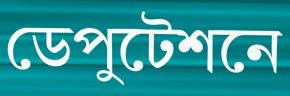
ডেপুটেশনে